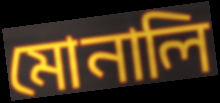
মোনালি